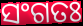
ସଂଗତଃ